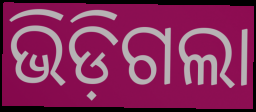
ଭିଡ଼ିଗଲା